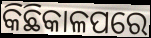
କିଛିକାଳପରେ